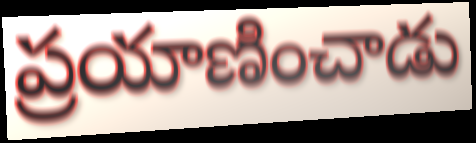
ప్రయాణించాడు